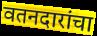
वतनदारांचा